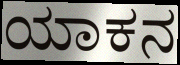
ಯಾಕನ